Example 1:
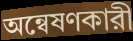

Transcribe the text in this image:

অন্বেষণকারী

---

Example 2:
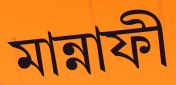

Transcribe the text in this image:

মান্নাফী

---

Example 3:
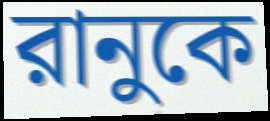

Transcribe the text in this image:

রানুকে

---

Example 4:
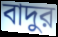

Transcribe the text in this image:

বাদুর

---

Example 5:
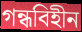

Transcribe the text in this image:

গন্ধবিহীন